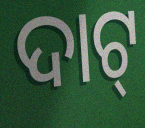
ଦାଟ୍